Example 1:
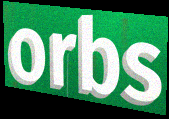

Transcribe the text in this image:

orbs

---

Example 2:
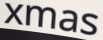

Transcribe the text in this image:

xmas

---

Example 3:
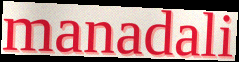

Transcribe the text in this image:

manadali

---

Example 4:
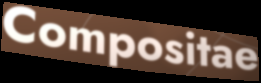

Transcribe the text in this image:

Compositae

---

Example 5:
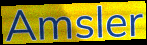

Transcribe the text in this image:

Amsler